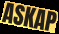
ASKAP